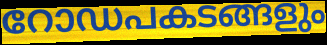
റോഡപകടങ്ങളും